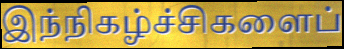
இந்நிகழ்ச்சிகளைப்